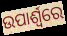
ଉପାର୍ଶ୍ଵରେ